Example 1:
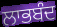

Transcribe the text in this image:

ਲਾਭਬੰਦ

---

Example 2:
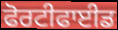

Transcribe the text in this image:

ਫੋਰਟੀਫਾਈਡ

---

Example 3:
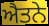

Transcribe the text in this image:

ਐਤਨੇ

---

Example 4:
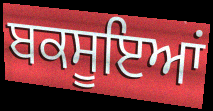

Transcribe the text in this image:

ਬਕਸੂਇਆਂ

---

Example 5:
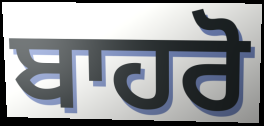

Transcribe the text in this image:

ਬਾਹਰੋ